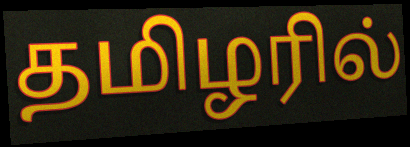
தமிழரில்